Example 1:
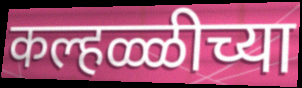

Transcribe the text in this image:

कल्हळ्ळीच्या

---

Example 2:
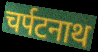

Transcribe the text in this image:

चर्पटनाथ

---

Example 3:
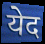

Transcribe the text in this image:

येद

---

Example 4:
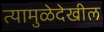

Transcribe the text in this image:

त्यामुळेदेखील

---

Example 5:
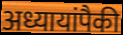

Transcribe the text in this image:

अध्यायांपैकी